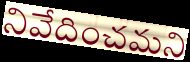
నివేదించమని